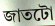
জাতটো